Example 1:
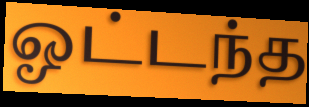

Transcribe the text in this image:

ஓட்டந்த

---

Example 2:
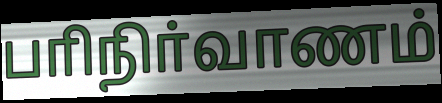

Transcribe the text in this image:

பரிநிர்வாணம்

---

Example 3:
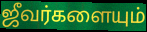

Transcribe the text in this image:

ஜீவர்களையும்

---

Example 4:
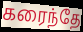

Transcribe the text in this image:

கரைந்தே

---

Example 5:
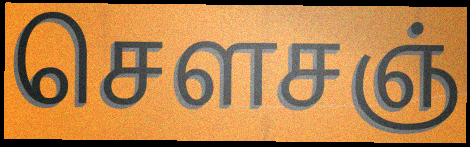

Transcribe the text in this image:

செளசஞ்